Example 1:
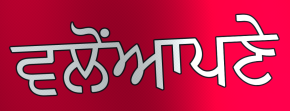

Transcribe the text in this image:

ਵਲੋਂਆਪਣੇ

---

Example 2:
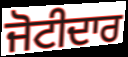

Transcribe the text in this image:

ਜੋਟੀਦਾਰ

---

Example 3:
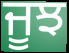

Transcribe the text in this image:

ਜੂਝ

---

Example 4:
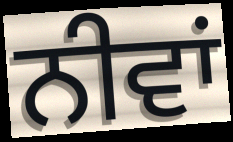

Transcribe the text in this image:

ਨੀਵਾਂ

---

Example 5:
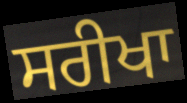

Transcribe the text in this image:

ਸਰੀਖਾ